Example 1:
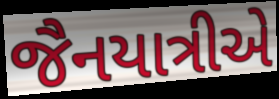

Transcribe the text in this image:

જૈનયાત્રીએ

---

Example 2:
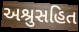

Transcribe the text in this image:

અશ્રુસહિત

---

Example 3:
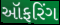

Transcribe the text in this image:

ઑફરિંગ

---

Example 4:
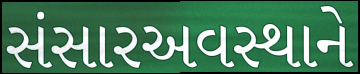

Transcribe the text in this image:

સંસારઅવસ્થાને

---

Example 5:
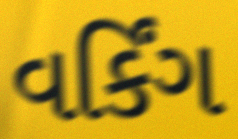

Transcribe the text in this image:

વર્કિંગ